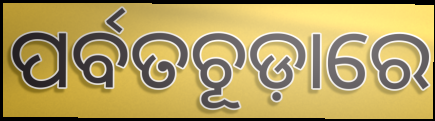
ପର୍ବତଚୂଡ଼ାରେ